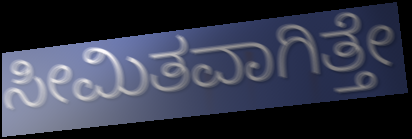
ಸೀಮಿತವಾಗಿತ್ತೇ